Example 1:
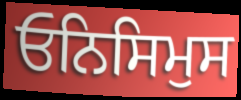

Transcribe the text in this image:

ਓਨਿਸਿਮੁਸ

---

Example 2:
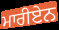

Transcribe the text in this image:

ਮਾਰੀਏਨ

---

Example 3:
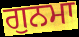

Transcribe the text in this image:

ਗੁਨਮਾ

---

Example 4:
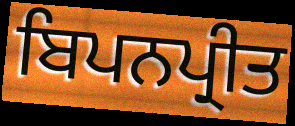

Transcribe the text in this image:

ਬਿਪਨਪ੍ਰੀਤ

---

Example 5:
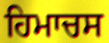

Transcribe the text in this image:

ਹਿਮਾਚਸ